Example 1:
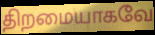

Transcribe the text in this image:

திறமையாகவே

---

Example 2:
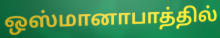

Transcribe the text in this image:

ஒஸ்மானாபாத்தில்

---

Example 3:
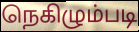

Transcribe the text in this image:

நெகிழும்படி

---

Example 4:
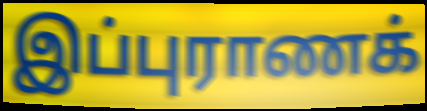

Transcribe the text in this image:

இப்புராணக்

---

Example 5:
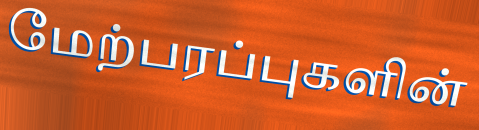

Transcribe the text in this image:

மேற்பரப்புகளின்